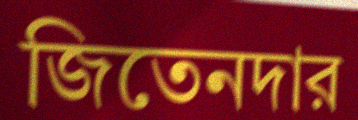
জিতেনদার